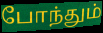
போந்தும்